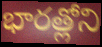
భారత్లోని